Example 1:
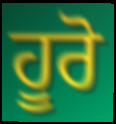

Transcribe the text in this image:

ਹੂਰੋ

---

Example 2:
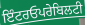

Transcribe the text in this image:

ਇੰਟਰਓਪਰੇਬਿਲਟੀ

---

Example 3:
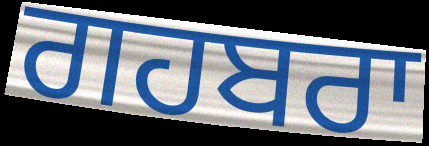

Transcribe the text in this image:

ਗਹਬਰਾ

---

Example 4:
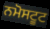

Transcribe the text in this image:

ਨਮੋਸਟੂਟ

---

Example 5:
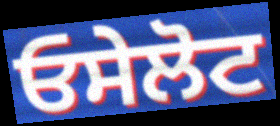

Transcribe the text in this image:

ਓਸੇਲੋਟ